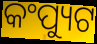
କଂପ୍ୟୁଟ